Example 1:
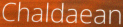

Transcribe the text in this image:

Chaldaean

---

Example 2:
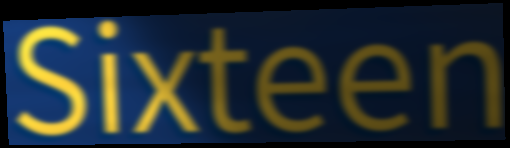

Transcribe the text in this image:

Sixteen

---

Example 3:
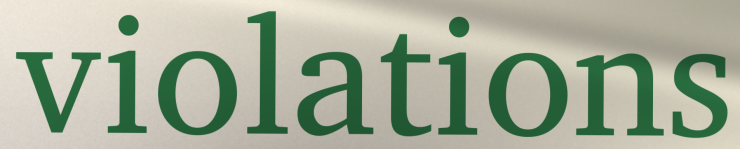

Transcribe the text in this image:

violations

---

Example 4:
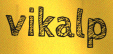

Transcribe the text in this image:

vikalp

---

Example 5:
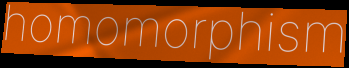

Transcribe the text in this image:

homomorphism